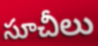
సూచీలు